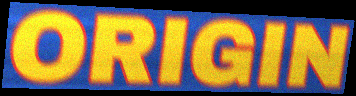
ORIGIN